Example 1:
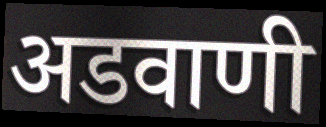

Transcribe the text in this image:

अडवाणी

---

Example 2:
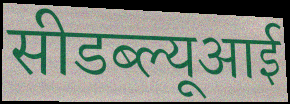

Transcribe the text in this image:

सीडब्ल्यूआई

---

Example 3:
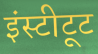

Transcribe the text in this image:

इंस्टीटूट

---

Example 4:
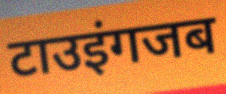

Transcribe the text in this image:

टाउइंगजब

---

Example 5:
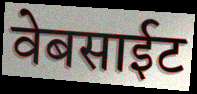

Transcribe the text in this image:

वेबसाईट